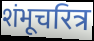
शंभूचरित्र